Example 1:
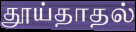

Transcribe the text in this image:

தூய்தாதல்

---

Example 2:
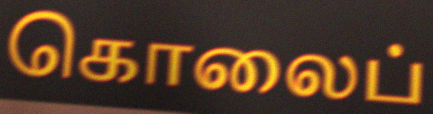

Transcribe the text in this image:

கொலைப்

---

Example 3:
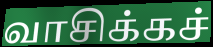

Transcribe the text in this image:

வாசிக்கச்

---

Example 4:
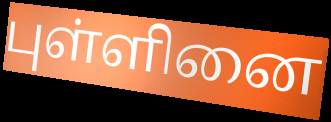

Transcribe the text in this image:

புள்ளினை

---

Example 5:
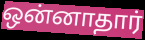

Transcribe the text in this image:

ஒன்னாதார்